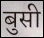
बुसी